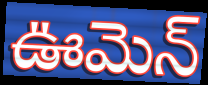
ఊమెన్